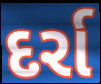
દર્રા